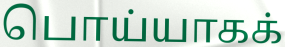
பொய்யாகக்